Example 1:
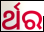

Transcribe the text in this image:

ର୍ଥର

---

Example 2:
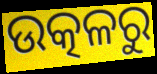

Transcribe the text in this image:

ଉତ୍କଳରୁ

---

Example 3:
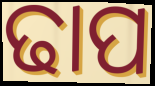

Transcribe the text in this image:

ଢାପ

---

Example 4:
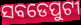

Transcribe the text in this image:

ସବଡେପୁଟୀ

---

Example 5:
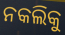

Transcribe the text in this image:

ନକଲିକୁ